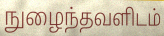
நுழைந்தவளிடம்